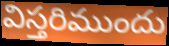
విస్తరిముందు